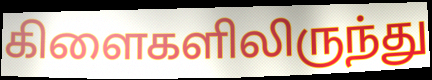
கிளைகளிலிருந்து